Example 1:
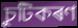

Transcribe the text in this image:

চুটিকৰণ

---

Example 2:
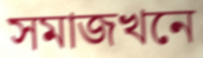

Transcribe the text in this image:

সমাজখনে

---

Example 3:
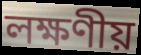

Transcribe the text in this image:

লক্ষণীয়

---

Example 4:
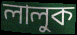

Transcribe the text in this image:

লালুক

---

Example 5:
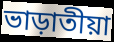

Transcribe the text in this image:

ভাড়াতীয়া